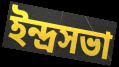
ইন্দ্রসভা